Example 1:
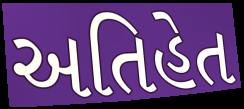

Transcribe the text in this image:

અતિહેત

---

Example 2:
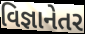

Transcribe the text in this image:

વિજ્ઞાનેતર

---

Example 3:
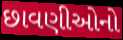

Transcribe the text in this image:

છાવણીઓનો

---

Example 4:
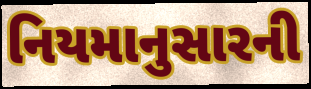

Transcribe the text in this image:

નિયમાનુસારની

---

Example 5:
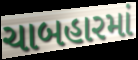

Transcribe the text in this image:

ચાબહારમાં